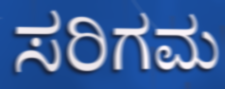
ಸರಿಗಮ